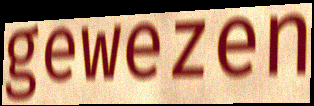
gewezen